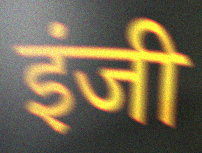
इंजी